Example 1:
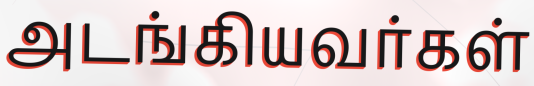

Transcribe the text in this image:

அடங்கியவர்கள்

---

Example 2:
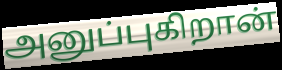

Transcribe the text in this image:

அனுப்புகிறான்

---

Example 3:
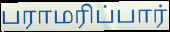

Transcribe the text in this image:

பராமரிப்பார்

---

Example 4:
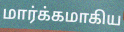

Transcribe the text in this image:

மார்க்கமாகிய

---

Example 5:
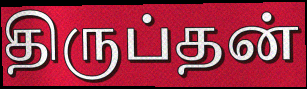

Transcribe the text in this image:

திருப்தன்